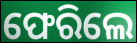
ଫେରିଲେ